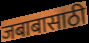
जबाबासाठी